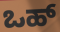
ಒಹ್